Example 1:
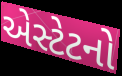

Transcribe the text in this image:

એસ્ટેટનો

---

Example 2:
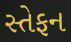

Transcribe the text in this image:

સ્તેફન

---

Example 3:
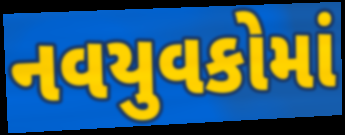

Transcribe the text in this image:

નવયુવકોમાં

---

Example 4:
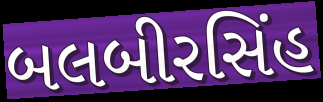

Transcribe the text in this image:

બલબીરસિંહ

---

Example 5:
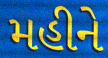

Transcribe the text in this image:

મહીને